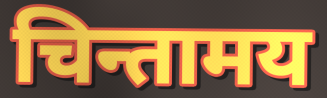
चिन्तामय